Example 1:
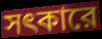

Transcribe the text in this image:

সৎকারে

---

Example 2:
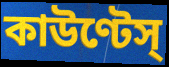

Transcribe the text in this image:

কাউণ্টেস্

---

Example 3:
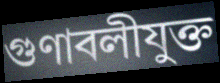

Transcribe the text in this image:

গুণাবলীযুক্ত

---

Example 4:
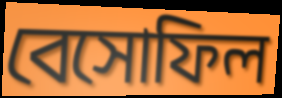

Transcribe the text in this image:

বেসোফিল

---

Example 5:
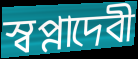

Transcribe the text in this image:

স্বপ্নাদেবী